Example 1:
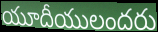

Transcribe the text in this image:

యూదీయులందరు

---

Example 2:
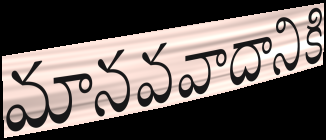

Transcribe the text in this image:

మానవవాదానికి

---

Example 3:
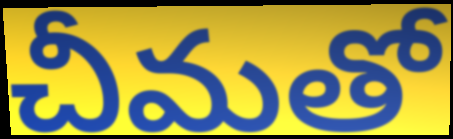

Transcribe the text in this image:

చీమతో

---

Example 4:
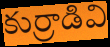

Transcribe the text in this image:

కుర్రాడివి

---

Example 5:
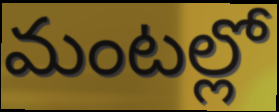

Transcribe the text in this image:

మంటల్లో